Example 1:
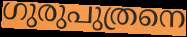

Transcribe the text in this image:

ഗുരുപുത്രനെ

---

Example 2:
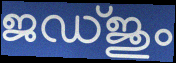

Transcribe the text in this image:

ജഡ്ജും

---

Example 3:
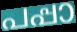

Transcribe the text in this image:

പപ്പാ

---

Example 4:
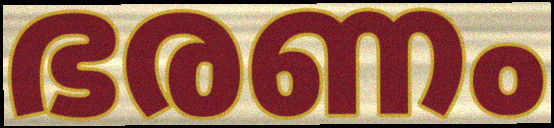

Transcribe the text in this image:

ഭരണം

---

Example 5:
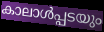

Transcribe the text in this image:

കാലാൾപ്പടയും